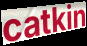
catkin